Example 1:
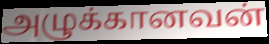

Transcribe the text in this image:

அழுக்கானவன்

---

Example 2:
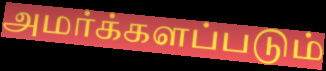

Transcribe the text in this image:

அமர்க்களப்படும்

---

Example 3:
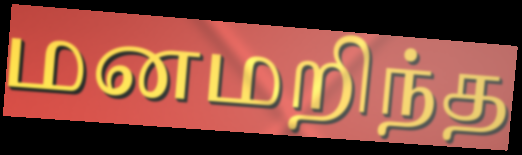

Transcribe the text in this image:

மனமறிந்த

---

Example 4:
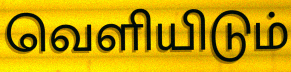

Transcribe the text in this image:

வெளியிடும்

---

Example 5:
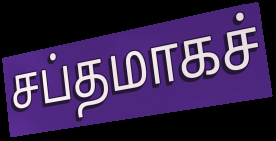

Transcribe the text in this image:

சப்தமாகச்